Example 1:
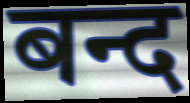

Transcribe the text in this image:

बन्द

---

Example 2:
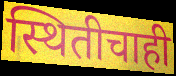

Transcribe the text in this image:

स्थितीचाही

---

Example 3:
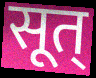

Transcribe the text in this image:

सूत्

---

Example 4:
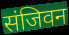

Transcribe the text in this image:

संजिवन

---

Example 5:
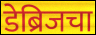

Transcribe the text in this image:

डेब्रिजचा